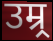
उम्र्र